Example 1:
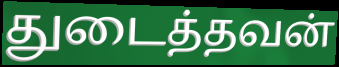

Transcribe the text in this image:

துடைத்தவன்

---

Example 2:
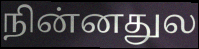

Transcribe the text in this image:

நின்னதுல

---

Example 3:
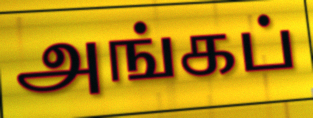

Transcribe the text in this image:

அங்கப்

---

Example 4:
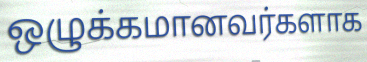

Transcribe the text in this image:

ஒழுக்கமானவர்களாக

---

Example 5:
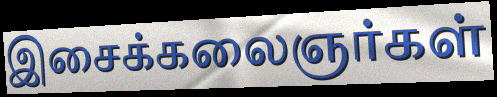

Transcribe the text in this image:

இசைக்கலைஞர்கள்